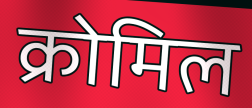
क्रोमिल